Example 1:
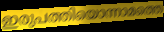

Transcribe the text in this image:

ഇരുപത്തിയൊന്നാമത്തെ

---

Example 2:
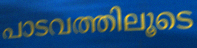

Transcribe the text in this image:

പാടവത്തിലൂടെ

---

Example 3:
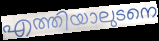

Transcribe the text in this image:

എത്തിയാലുടനെ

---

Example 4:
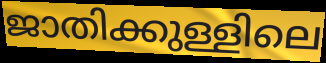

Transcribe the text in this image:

ജാതിക്കുള്ളിലെ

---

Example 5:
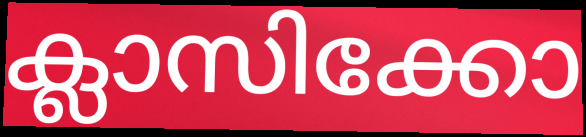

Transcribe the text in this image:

ക്ലാസിക്കോ